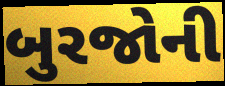
બુરજોની